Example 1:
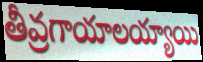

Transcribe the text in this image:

తీవ్రగాయాలయ్యాయి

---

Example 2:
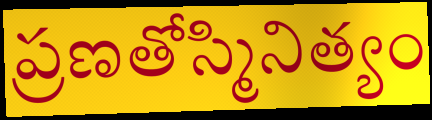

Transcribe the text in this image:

ప్రణతోస్మినిత్యం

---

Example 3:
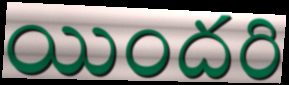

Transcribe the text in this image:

యిందరి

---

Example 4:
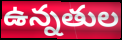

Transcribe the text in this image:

ఉన్నతుల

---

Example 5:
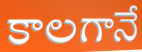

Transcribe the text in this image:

కాలగానే